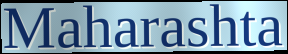
Maharashta